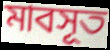
মাবসূত